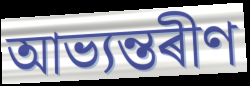
আভ্যন্তৰীণ